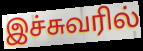
இச்சுவரில்